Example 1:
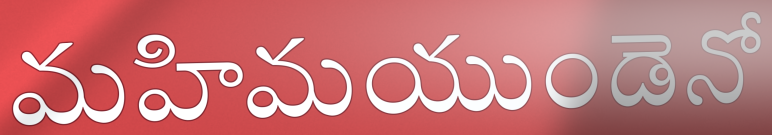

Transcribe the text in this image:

మహిమయుండెనో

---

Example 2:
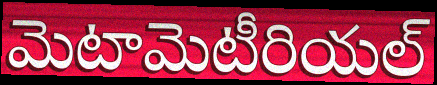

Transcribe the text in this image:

మెటామెటీరియల్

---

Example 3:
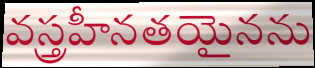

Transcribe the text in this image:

వస్త్రహీనతయైనను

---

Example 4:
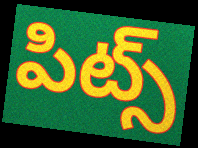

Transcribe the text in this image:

పిట్స్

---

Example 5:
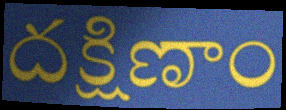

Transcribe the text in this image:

దక్షిణాం